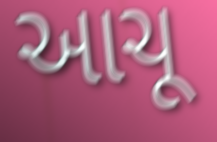
આચૂ